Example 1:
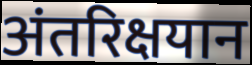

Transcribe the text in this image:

अंतरिक्षयान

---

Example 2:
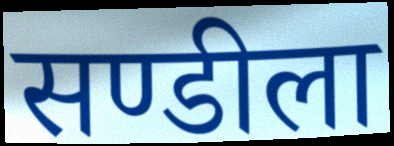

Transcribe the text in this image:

सण्डीला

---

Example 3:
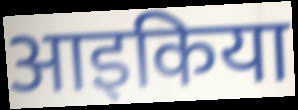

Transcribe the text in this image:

आइकिया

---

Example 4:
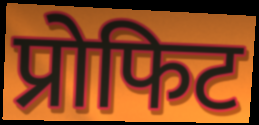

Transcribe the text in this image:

प्रोफिट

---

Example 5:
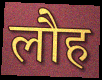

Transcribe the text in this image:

लौह